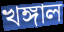
খঙ্গাল